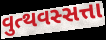
વુત્થવસ્સત્તા